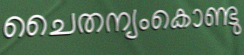
ചൈതന്യംകൊണ്ടു